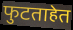
फुटताहेत